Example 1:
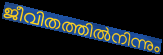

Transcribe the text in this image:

ജീവിതത്തിൽനിന്നും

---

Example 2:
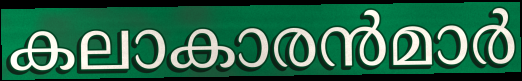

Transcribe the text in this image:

കലാകാരൻമാർ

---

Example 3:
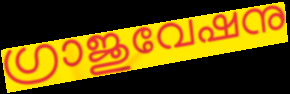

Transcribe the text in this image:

ഗ്രാജുവേഷനു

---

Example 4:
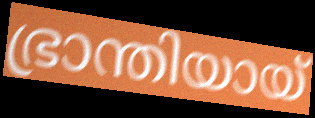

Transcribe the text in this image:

ഭ്രാന്തിയായ്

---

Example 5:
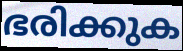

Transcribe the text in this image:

ഭരിക്കുക